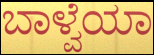
ಬಾಳ್ವೆಯಾ